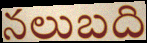
నలుబది